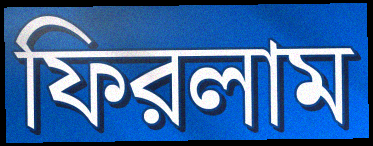
ফিরলাম